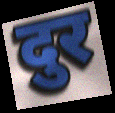
दुर